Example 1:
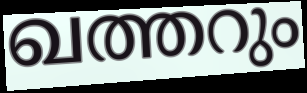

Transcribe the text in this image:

ഖത്തറും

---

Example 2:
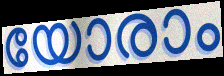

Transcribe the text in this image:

യോരാം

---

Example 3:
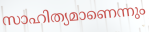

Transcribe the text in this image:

സാഹിത്യമാണെന്നും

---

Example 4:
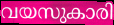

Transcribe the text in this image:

വയസുകാരി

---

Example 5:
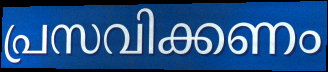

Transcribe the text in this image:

പ്രസവിക്കണം